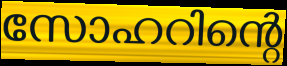
സോഹറിന്റെ